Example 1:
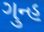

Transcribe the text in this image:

ગુન્હ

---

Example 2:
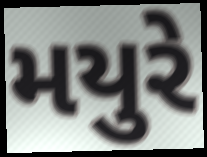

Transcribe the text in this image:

મયુરે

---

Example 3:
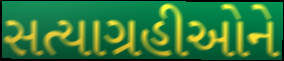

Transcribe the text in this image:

સત્યાગ્રહીઓને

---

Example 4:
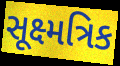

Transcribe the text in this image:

સૂક્ષ્મત્રિક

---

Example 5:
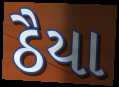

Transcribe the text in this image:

ઠૈયા